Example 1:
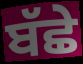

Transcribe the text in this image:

ਬੱਛੇ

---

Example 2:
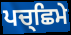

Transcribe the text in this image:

ਪਚ੍ਛਿਮੇ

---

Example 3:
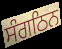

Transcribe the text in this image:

ਸੰਗਠਿਨ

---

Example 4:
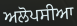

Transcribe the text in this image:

ਅਲੋਪਸੀਆ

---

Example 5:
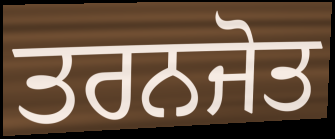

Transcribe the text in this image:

ਤਰਨਜੋਤ